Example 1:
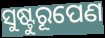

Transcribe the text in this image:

ସୁଷ୍ଟୁରୂପେଣ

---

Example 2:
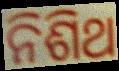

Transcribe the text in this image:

ନିଶିଥ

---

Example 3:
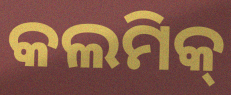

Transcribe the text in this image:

କଲମିକ୍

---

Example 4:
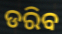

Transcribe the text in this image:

ଡରିବ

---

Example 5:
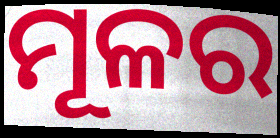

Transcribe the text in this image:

ମୂଳର